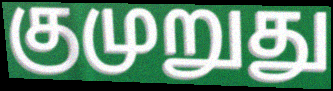
குமுறுது